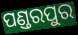
ପଣ୍ଡରପୁର